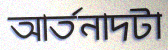
আর্তনাদটা